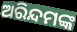
ଅରିନ୍ଦମଙ୍କ